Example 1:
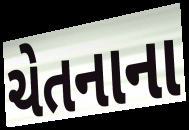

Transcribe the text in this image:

ચેતનાના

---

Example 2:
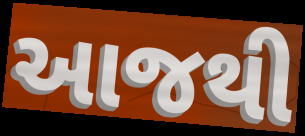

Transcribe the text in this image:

આજથી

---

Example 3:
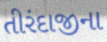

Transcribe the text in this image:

તીરંદાજીના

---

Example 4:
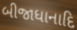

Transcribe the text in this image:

બીજાધાનાદિ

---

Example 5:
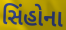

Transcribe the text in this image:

સિંહોના